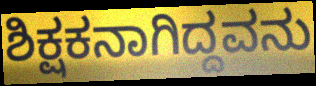
ಶಿಕ್ಷಕನಾಗಿದ್ದವನು